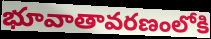
భూవాతావరణంలోకి